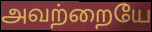
அவற்றையே